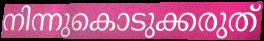
നിന്നുകൊടുക്കരുത്